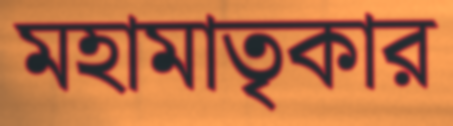
মহামাতৃকার